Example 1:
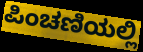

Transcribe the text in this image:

ಪಿಂಚಣಿಯಲ್ಲಿ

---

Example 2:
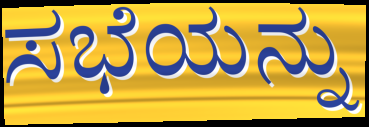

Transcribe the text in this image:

ಸಭೆಯನ್ನು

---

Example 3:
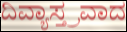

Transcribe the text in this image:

ದಿವ್ಯಾಸ್ತ್ರವಾದ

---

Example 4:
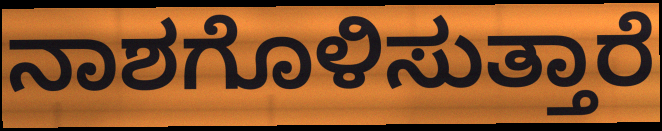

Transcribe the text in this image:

ನಾಶಗೊಳಿಸುತ್ತಾರೆ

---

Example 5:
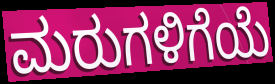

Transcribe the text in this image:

ಮರುಗಳಿಗೆಯೆ